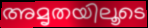
അമൃതയിലൂടെ